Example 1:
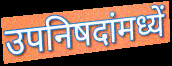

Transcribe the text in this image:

उपनिषदांमध्यें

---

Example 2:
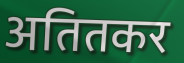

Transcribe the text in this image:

अतितकर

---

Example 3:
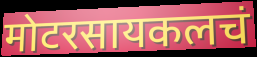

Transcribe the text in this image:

मोटरसायकलचं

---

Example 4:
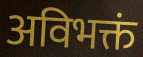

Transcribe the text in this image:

अविभक्तं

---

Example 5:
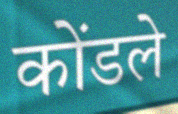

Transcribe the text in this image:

कोंडले